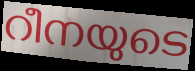
റീനയുടെ